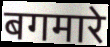
बगमारे